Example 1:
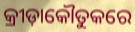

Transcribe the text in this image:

କ୍ରୀଡ଼ାକୌତୁକରେ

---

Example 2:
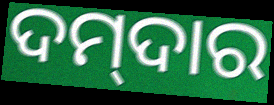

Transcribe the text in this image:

ଦମ୍‌ଦାର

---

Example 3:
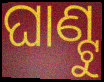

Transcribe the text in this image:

ଘାଣ୍ଟୁ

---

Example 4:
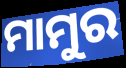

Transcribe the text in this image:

ମାମୁର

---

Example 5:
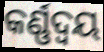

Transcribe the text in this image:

କର୍ଣ୍ଣଦ୍ୱୟ